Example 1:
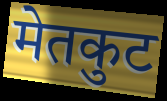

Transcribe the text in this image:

मेतकुट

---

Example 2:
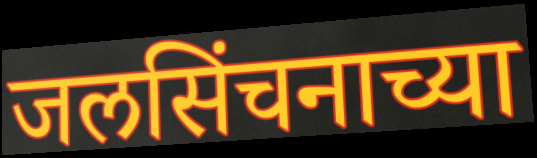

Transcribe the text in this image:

जलसिंचनाच्या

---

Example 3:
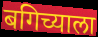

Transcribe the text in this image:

बगिच्याला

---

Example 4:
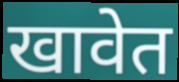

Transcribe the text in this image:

खावेत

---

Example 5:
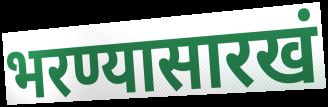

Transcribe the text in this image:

भरण्यासारखं